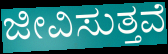
ಜೀವಿಸುತ್ತವೆ